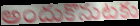
అందుకొనుటకు